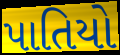
પાતિયો